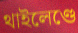
থাইলেণ্ডে